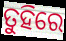
ତୁହିରେ